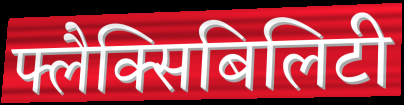
फ्लैक्सिबिलिटी